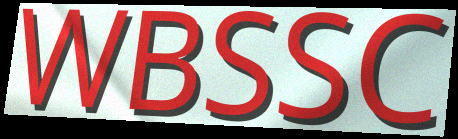
WBSSC